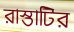
রাস্তাটির